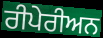
ਰੀਪੇਰੀਅਨ